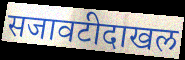
सजावटीदाखल